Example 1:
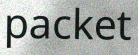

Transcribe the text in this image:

packet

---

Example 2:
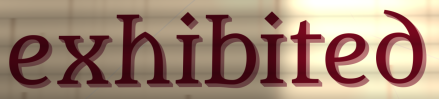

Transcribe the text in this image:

exhibited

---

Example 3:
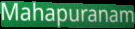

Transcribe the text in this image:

Mahapuranam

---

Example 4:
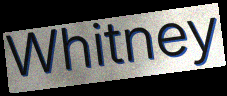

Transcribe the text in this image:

Whitney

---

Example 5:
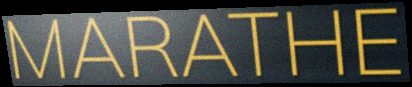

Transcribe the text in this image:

MARATHE